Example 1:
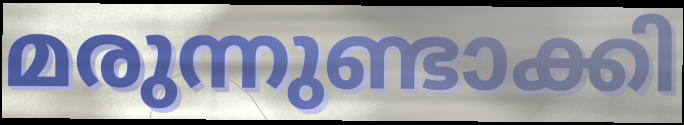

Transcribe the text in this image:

മരുന്നുണ്ടാക്കി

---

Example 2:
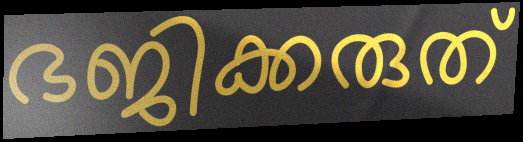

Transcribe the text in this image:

ഭജിക്കരുത്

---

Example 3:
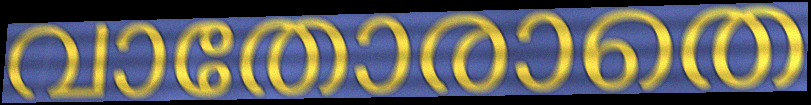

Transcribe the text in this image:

വാതോരാതെ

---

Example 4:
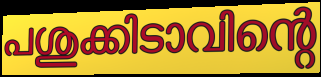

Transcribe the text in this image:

പശുക്കിടാവിന്റെ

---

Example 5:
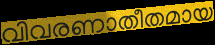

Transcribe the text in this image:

വിവരണാതീതമായ